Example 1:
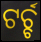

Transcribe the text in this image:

ଟର୍ଚ୍ଚ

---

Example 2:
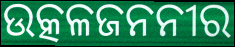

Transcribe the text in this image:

ଉତ୍କଳଜନନୀର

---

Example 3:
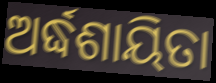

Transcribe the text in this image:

ଅର୍ଦ୍ଧଶାୟିତା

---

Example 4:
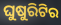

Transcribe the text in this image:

ଘୁଷୁରିଟିର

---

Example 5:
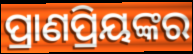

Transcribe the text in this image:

ପ୍ରାଣପ୍ରିୟଙ୍କର